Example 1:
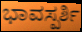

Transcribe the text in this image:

ಭಾವಸ್ಪರ್ಶಿ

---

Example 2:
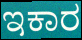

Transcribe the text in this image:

ಇಕಾರ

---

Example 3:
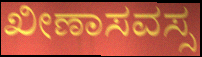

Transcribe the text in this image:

ಖೀಣಾಸವಸ್ಸ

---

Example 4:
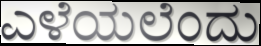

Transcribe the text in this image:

ಎಳೆಯಲೆಂದು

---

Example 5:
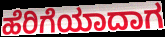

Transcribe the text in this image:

ಹೆರಿಗೆಯಾದಾಗ